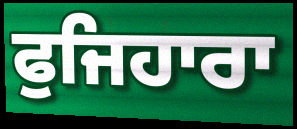
ਫੁਜਿਹਾਰਾ